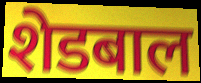
शेडबाल